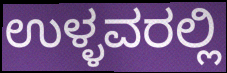
ಉಳ್ಳವರಲ್ಲಿ